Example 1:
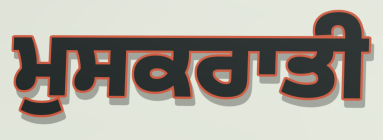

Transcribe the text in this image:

ਮੁਸਕਰਾਤੀ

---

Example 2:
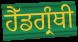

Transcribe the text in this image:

ਹੈੱਡਗ੍ਰੰਥੀ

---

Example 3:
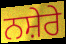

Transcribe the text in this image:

ਨਸ਼ੇਰੇ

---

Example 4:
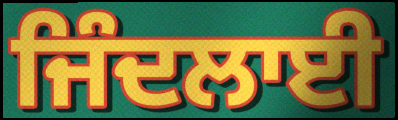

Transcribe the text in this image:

ਜਿੰਦਲਾਈ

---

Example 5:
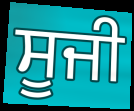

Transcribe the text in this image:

ਸੂਜੀ